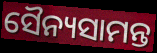
ସୈନ୍ୟସାମନ୍ତ